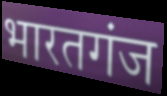
भारतगंज